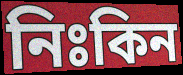
নিঃকিন